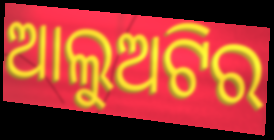
ଆଲୁଅଟିର